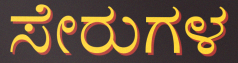
ಸೇರುಗಳ